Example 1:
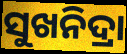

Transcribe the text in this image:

ସୁଖନିଦ୍ରା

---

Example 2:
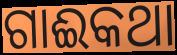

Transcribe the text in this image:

ଗାଈକଥା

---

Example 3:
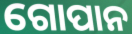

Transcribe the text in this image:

ଗୋପାନ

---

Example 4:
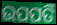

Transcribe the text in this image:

ଉପପତି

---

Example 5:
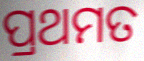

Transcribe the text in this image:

ପ୍ରଥମତ